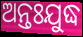
ଅନ୍ତଃଯୁଦ୍ଧ